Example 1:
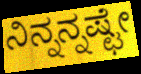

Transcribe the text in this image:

ನಿನ್ನನ್ನಷ್ಟೇ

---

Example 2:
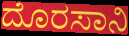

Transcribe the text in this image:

ದೊರಸಾನಿ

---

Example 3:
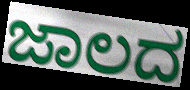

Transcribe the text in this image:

ಜಾಲದ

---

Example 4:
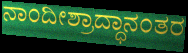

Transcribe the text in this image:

ನಾಂದೀಶ್ರಾದ್ಧಾನಂತರ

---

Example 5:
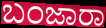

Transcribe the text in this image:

ಬಂಜಾರಾ